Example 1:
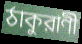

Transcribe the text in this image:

ঠাকুরাণী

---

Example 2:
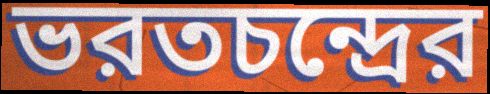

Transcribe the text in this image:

ভরতচন্দ্রের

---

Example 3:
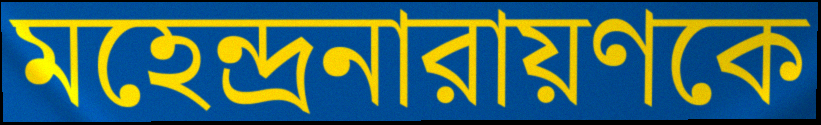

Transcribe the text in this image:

মহেন্দ্রনারায়ণকে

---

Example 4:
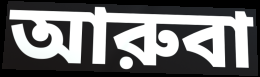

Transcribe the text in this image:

আরুবা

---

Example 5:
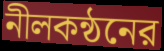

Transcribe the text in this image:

নীলকন্ঠনের